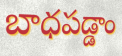
బాధపడ్డాం